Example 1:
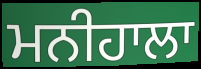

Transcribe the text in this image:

ਮਨੀਹਾਲਾ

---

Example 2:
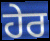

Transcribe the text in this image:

ਹੇਰ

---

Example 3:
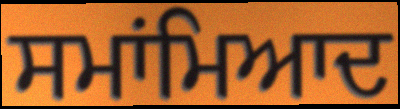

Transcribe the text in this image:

ਸਮਾਂਮਿਆਦ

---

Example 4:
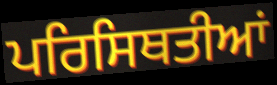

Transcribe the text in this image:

ਪਰਿਸਿਥਤੀਆਂ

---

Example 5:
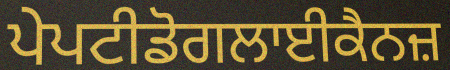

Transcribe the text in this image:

ਪੇਪਟੀਡੋਗਲਾਈਕੈਨਜ਼